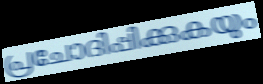
പ്രചോദിപ്പിക്കുകയും